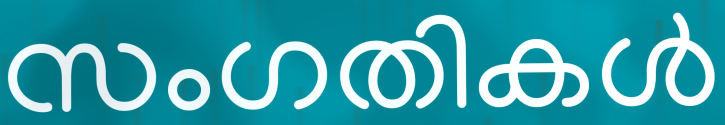
സംഗതികൾ